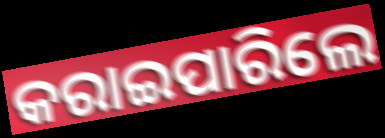
କରାଇପାରିଲେ